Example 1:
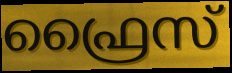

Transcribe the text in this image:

ഫ്രൈസ്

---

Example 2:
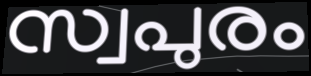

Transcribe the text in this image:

സ്വപുരം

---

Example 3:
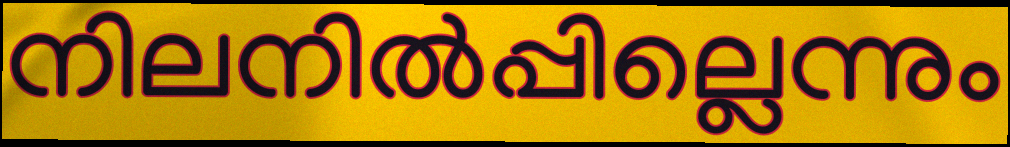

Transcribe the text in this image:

നിലനിൽപ്പില്ലെന്നും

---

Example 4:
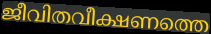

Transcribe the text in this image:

ജീവിതവീക്ഷണത്തെ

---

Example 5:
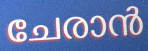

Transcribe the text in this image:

ചേരാൻ